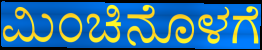
ಮಿಂಚಿನೊಳಗೆ